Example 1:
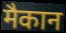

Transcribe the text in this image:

मैकान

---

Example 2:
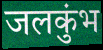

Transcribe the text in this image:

जलकुंभ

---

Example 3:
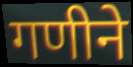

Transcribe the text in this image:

गणीने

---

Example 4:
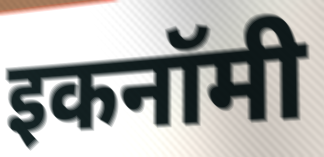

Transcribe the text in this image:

इकनॉमी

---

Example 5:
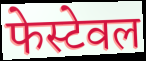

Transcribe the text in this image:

फेस्टेवल